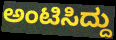
ಅಂಟಿಸಿದ್ದು